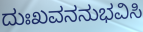
ದುಃಖವನನುಭವಿಸಿ